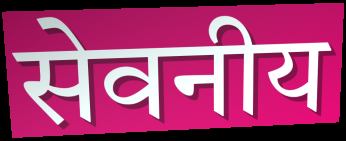
सेवनीय